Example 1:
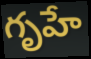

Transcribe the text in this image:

గృహే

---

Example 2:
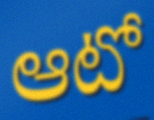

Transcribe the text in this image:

ఆటో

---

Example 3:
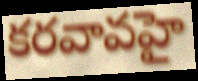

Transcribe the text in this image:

కరవావహై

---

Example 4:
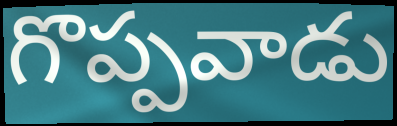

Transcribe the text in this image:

గొప్పవాడు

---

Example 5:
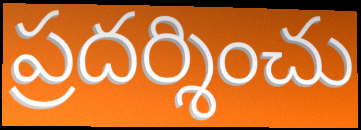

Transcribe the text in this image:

ప్రదర్శించు